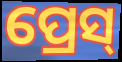
ପ୍ରେସ୍